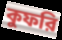
কুফরি